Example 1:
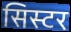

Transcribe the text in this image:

सिस्टर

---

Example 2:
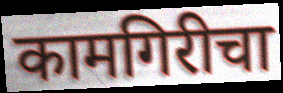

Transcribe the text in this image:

कामगिरीचा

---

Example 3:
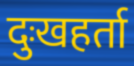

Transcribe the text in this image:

दुःखहर्ता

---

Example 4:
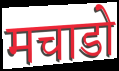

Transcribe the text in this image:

मचाडो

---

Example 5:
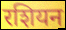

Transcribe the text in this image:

रशियन